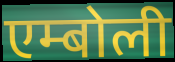
एम्बोली